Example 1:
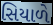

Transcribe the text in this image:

સિયાળે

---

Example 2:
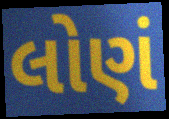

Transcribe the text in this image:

લોણં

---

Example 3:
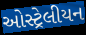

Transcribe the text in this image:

ઓસ્ટ્રેલીયન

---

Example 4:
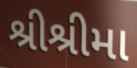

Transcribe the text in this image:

શ્રીશ્રીમા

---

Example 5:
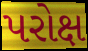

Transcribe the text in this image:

પરોક્ષ